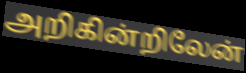
அறிகின்றிலேன்